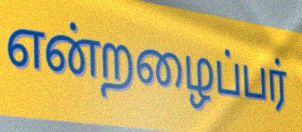
என்றழைப்பர்